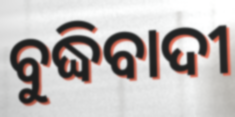
ବୁଦ୍ଧିବାଦୀ